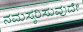
ನಮಸ್ಕರಿಸುವುದೇ